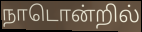
நாடொன்றில்